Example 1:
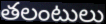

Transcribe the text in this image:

తలంటులు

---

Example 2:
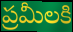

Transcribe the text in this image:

ప్రమీలకి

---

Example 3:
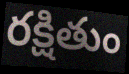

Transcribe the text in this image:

రక్షితుం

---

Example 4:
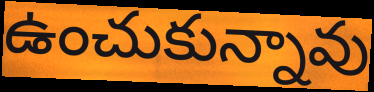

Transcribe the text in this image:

ఉంచుకున్నావు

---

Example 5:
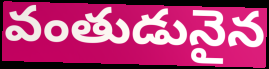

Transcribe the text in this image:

వంతుడునైన